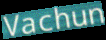
Vachun